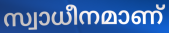
സ്വാധീനമാണ്